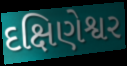
દક્ષિણેશ્વર